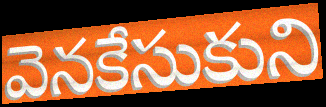
వెనకేసుకుని